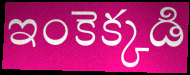
ఇంకెక్కడి